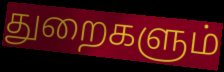
துறைகளும்